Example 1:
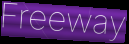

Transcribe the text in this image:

Freeway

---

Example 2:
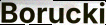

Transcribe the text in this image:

Borucki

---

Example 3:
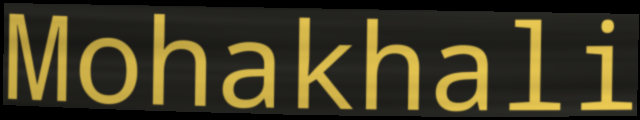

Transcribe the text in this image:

Mohakhali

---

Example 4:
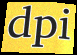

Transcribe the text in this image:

dpi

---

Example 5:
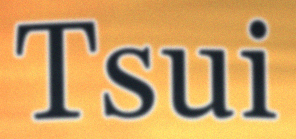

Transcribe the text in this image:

Tsui